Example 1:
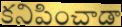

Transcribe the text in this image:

కనిపించాడా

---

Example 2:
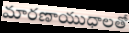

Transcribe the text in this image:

మారణాయుధాలతో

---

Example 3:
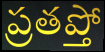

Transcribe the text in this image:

ప్రతప్తో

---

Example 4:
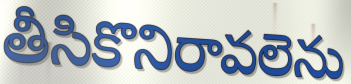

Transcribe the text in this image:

తీసికొనిరావలెను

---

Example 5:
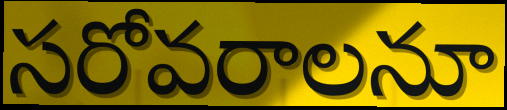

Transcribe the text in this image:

సరోవరాలనూ